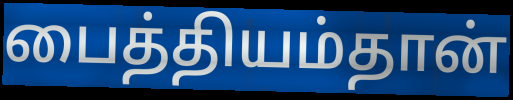
பைத்தியம்தான்